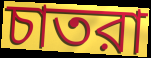
চাতরা